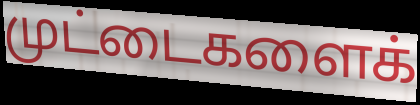
முட்டைகளைக்